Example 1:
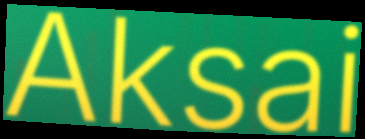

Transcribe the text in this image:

Aksai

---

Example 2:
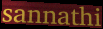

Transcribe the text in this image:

sannathi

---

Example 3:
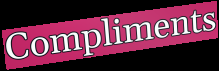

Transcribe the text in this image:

Compliments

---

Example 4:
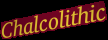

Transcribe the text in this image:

Chalcolithic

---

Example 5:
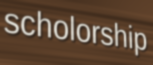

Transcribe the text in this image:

scholorship